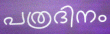
പത്രദിനം